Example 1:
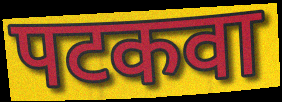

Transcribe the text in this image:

पटकवा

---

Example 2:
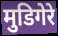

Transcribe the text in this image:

मुडिगेरे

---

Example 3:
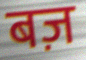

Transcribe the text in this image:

बज़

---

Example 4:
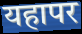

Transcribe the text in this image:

यहापर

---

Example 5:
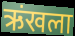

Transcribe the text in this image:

ऋंखला